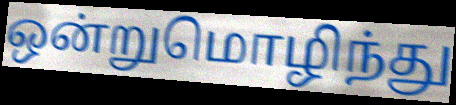
ஒன்றுமொழிந்து